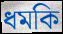
ধমকি